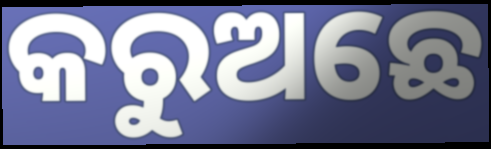
କରୁଅଛେ